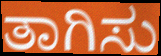
ತಾಗಿಸು